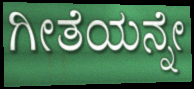
ಗೀತೆಯನ್ನೇ